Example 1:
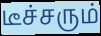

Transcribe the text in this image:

டீச்சரும்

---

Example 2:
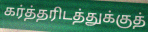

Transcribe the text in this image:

கர்த்தரிடத்துக்குத்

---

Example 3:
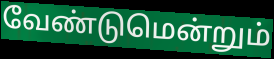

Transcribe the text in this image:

வேண்டுமென்றும்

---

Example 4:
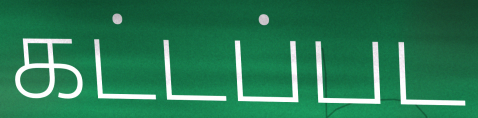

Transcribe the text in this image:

கட்டப்பட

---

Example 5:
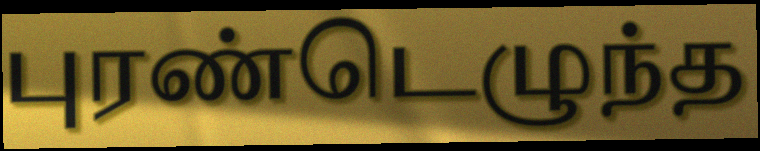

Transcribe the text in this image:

புரண்டெழுந்த